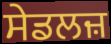
ਸੇਡਲਜ਼